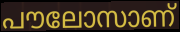
പൗലോസാണ്